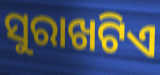
ସୁରାଖଟିଏ